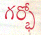
గర్భో